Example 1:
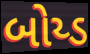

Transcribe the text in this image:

બોય્ડ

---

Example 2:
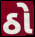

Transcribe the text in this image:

ઠો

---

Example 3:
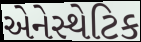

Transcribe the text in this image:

એનેસ્થેટિક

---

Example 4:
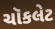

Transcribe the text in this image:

ચૉકલેટ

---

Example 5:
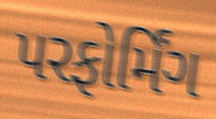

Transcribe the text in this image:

પરફોર્મિંગ